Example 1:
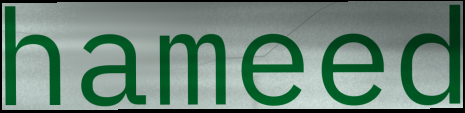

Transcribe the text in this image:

hameed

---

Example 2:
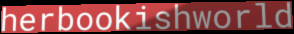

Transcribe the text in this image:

herbookishworld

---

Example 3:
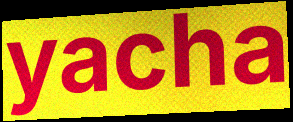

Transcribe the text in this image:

yacha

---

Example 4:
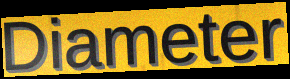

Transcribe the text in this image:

Diameter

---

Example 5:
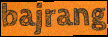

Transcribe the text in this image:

bajrang